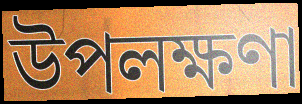
উপলক্ষণা